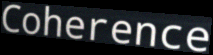
Coherence